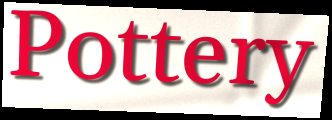
Pottery